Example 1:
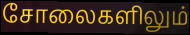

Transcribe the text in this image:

சோலைகளிலும்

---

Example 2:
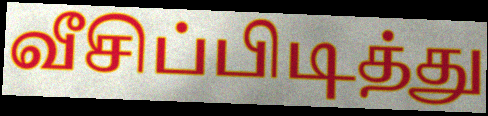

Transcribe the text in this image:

வீசிப்பிடித்து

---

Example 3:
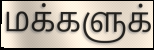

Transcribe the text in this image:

மக்களுக்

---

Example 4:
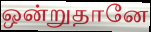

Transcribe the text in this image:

ஒன்றுதானே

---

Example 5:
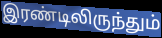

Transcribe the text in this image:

இரண்டிலிருந்தும்